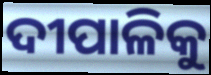
ଦୀପାଳିକୁ